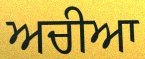
ਅਚੀਆ